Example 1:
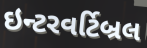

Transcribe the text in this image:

ઇન્ટરવર્ટિબ્રલ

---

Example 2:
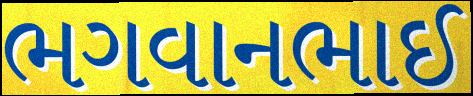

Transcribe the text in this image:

ભગવાનભાઈ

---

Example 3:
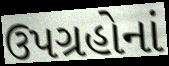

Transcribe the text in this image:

ઉપગ્રહોનાં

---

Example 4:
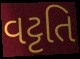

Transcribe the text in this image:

વટ્ટતિ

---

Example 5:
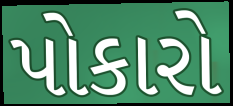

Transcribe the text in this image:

પોકારો